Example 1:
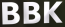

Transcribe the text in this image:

BBK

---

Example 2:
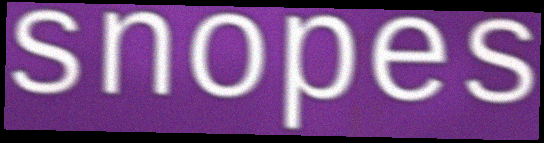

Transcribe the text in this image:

snopes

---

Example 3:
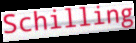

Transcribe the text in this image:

Schilling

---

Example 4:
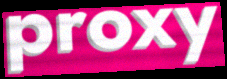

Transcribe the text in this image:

proxy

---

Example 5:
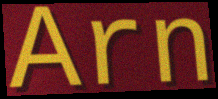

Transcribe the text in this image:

Arn